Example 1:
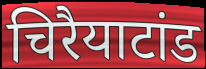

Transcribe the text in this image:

चिरैयाटांड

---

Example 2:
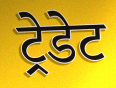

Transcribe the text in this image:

ट्रेडेट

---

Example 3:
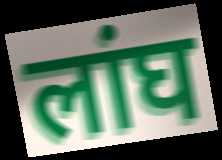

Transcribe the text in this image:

लांघ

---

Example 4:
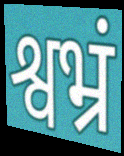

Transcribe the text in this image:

श्वभ्रं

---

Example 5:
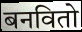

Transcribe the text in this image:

बनवितो